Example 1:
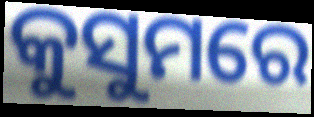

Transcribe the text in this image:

କୁସୁମରେ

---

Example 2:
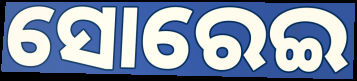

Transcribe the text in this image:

ସୋରେଇ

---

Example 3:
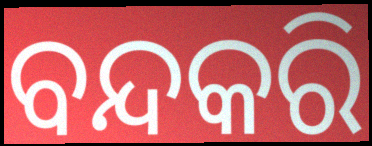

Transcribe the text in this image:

ବନ୍ଦକରି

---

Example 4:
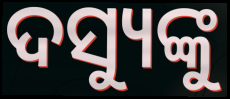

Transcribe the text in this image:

ଦସ୍ୟୁଙ୍କୁ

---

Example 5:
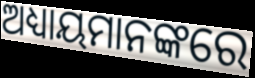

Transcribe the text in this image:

ଅଧ୍ୟାୟମାନଙ୍କରେ